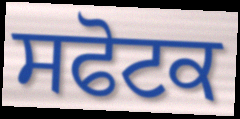
ਸਫੋਟਕ